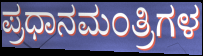
ಪ್ರಧಾನಮಂತ್ರಿಗಳ